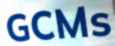
GCMs